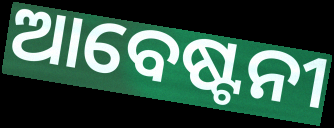
ଆବେଷ୍ଟନୀ